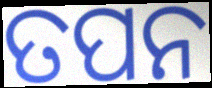
ତପନ